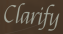
Clarify